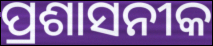
ପ୍ରଶାସନୀକ